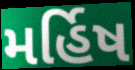
મર્હિષ